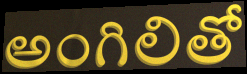
అంగిలితో